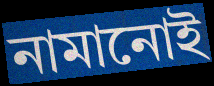
নামানোই